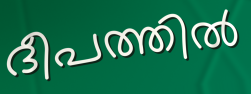
ദീപത്തിൽ